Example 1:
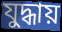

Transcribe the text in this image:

যুদ্ধায়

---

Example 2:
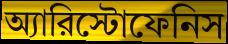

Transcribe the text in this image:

অ্যারিস্টোফেনিস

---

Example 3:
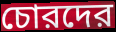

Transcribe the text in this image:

চোরদের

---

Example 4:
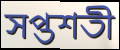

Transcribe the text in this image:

সপ্তশতী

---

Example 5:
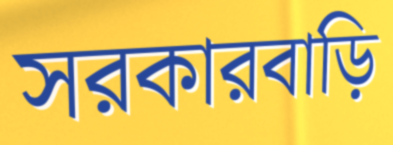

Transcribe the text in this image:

সরকারবাড়ি